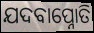
ଯଦବାପ୍ନୋତି